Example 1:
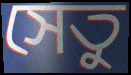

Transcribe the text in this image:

সেতু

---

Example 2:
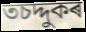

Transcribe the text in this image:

তচদ্দুকৰ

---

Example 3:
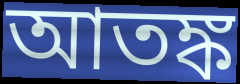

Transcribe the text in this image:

আতঙ্ক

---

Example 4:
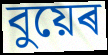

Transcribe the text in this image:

বুয়েৰ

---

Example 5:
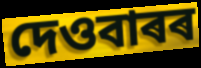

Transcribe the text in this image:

দেওবাৰৰ